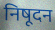
निषूदन